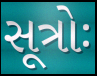
સૂત્રોઃ